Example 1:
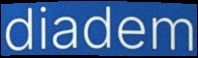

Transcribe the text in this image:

diadem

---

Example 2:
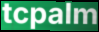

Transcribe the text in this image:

tcpalm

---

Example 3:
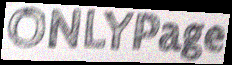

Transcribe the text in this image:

ONLYPage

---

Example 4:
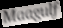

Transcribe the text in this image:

Maagulf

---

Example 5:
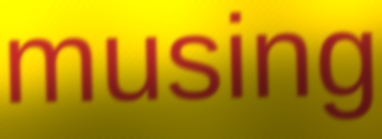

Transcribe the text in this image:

musing